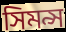
সিমন্স